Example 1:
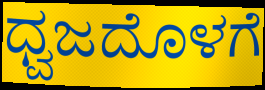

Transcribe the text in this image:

ಧ್ವಜದೊಳಗೆ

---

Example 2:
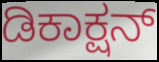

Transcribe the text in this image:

ಡಿಕಾಕ್ಷನ್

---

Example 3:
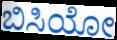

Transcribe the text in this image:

ಬಿಸಿಯೋ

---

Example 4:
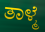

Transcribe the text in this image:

ತಾಳ್ಮೆ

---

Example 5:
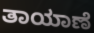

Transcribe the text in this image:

ತಾಯಾಣೆ